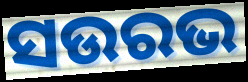
ସଉରଭ